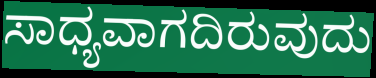
ಸಾಧ್ಯವಾಗದಿರುವುದು